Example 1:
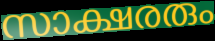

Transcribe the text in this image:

സാക്ഷരരും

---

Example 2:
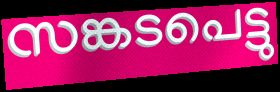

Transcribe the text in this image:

സങ്കടപെട്ടു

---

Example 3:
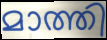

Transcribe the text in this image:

മാത്തി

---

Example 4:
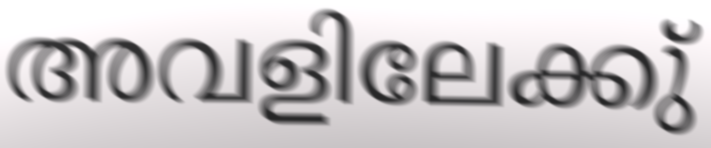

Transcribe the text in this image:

അവളിലേക്കു്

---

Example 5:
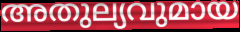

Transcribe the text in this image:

അതുല്യവുമായ